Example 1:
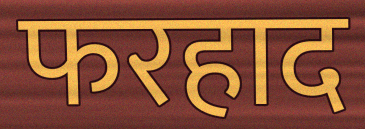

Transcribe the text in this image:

फरहाद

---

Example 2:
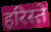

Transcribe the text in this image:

हरिस्ते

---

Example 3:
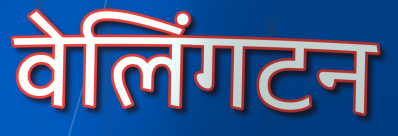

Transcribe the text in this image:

वेलिंगटन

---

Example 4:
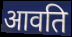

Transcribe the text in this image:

आवति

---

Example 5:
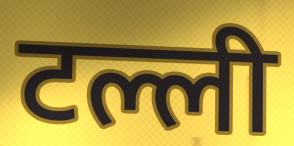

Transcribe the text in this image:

टल्ली